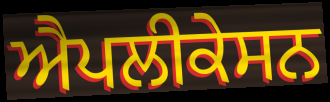
ਐਪਲੀਕੇਸਨ